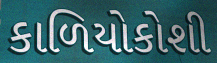
કાળિયોકોશી